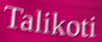
Talikoti